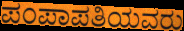
ಪಂಪಾಪತಿಯವರು